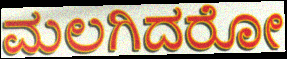
ಮಲಗಿದರೋ